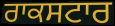
ਰਾਕਸਟਾਰ